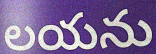
లయను